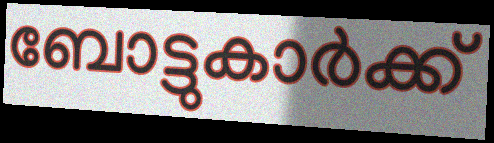
ബോട്ടുകാർക്ക്